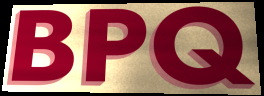
BPQ